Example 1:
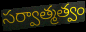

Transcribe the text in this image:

సర్వాత్మత్వం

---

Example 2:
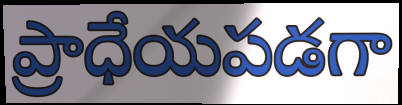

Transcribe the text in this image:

ప్రాధేయపడగా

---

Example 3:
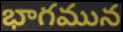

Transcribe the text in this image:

భాగమున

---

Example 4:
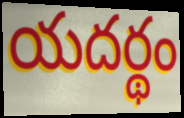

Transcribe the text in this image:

యదర్థం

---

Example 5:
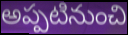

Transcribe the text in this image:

అప్పటినుంచి